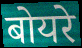
बोयरे